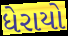
ધેરાયો